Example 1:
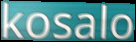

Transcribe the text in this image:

kosalo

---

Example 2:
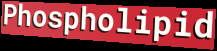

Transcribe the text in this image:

Phospholipid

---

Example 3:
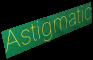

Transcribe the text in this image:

Astigmatic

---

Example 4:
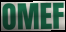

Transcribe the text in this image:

OMEF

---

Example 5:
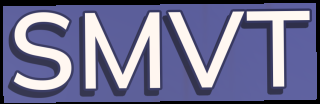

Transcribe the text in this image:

SMVT